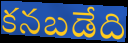
కనబడేది